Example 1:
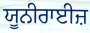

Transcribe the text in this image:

ਯੂਨੀਰਾਈਜ਼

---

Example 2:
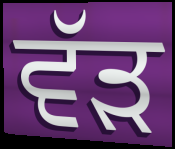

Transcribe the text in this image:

ਵੱੜ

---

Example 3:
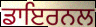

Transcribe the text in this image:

ਡਾਇਰਨਲ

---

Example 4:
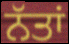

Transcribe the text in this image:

ਨੱਤਾਂ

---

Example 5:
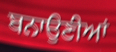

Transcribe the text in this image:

ਬਨਾਉਣੀਆਂ